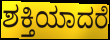
ಶಕ್ತಿಯಾದರೆ